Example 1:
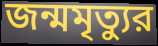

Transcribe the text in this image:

জন্মমৃত্যুর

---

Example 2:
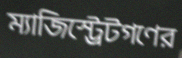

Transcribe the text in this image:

ম্যাজিস্ট্রেটগণের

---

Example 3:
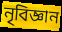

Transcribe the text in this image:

নৃবিজ্ঞান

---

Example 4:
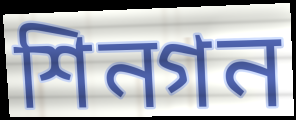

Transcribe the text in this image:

শিনগন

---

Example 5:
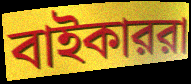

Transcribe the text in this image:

বাইকাররা